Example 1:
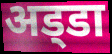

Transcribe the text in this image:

अड्‍डा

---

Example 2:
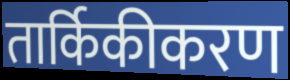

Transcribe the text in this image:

तार्किकीकरण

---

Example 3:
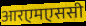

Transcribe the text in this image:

आरएमएससी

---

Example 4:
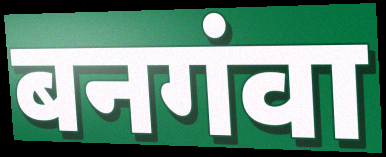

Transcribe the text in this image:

बनगंवा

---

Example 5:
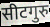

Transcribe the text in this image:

सीटगुरु